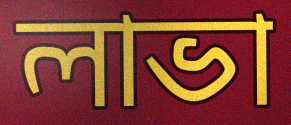
লাভা